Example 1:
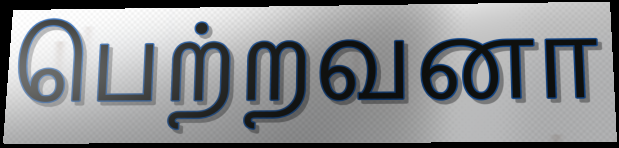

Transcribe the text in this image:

பெற்றவனா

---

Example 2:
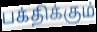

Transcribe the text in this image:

பக்திக்கும்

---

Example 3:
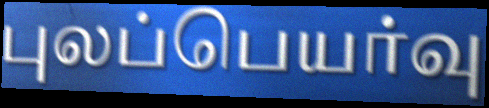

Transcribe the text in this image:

புலப்பெயர்வு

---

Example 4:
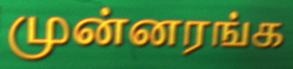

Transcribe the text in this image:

முன்னரங்க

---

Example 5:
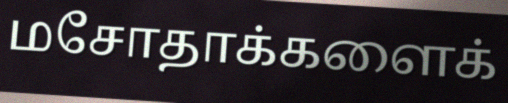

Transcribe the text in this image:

மசோதாக்களைக்